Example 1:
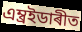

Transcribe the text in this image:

এম্ব্ৰইডাৰীত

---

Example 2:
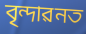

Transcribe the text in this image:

বৃন্দাৱনত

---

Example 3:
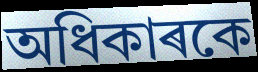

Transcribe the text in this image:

অধিকাৰকে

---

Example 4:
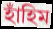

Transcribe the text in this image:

হাঁহিম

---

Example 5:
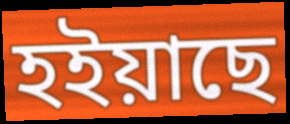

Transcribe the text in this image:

হইয়াছে